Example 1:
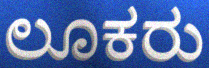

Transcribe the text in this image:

ಲೂಕರು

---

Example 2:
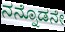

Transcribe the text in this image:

ನನ್ನೊಡನೇ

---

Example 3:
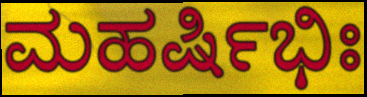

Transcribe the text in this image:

ಮಹರ್ಷಿಭಿಃ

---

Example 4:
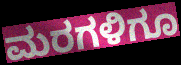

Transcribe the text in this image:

ಮರಗಳಿಗೂ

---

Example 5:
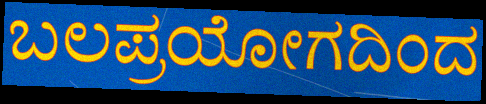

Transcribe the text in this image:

ಬಲಪ್ರಯೋಗದಿಂದ